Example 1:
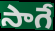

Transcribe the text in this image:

సాగే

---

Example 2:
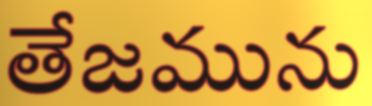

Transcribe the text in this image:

తేజమును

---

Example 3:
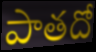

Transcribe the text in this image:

పాతదో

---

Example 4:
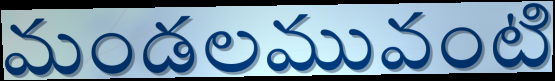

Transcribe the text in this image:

మండలమువంటి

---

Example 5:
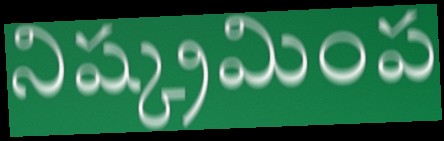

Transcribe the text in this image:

నిష్క్రమింప